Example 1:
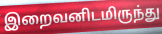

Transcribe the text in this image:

இறைவனிடமிருந்து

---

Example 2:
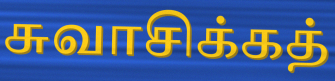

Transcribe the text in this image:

சுவாசிக்கத்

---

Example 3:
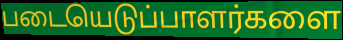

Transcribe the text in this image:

படையெடுப்பாளர்களை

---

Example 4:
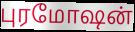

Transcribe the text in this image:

புரமோஷன்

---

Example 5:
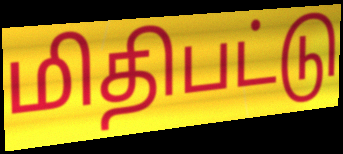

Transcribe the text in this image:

மிதிபட்டு